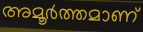
അമൂർത്തമാണ്